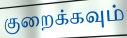
குறைக்கவும்